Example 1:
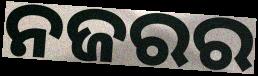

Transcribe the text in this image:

ନଜରର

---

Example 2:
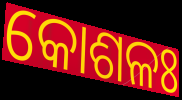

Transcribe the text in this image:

କୋଶଳଃ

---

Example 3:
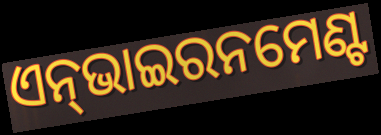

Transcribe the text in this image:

ଏନ୍‌ଭାଇରନମେଣ୍ଟ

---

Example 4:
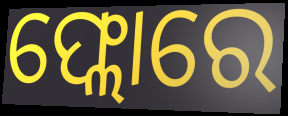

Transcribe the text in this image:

ଫ୍ଲୋରେ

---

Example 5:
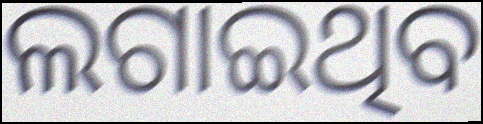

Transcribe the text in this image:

ଲଗାଇଥିବ